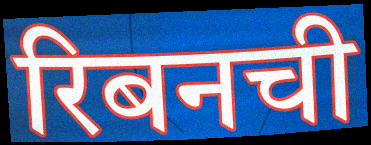
रिबनची